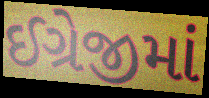
ઈગ્રેજીમાં